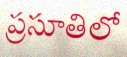
ప్రసూతిలో